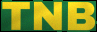
TNB